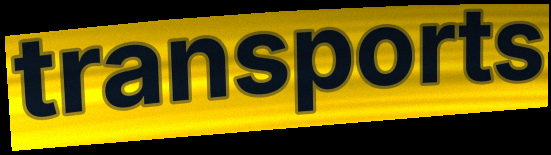
transports